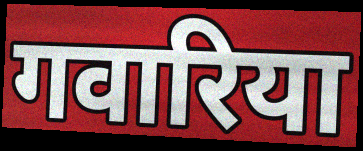
गवारिया